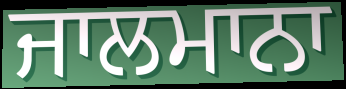
ਜਾਲਮਾਨਾ